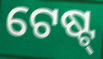
ଟେଷ୍ଟ୍